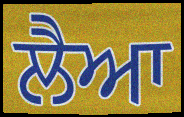
ਲੈਆ